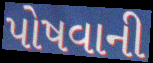
પોષવાની